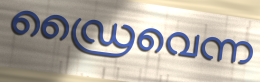
ഡ്രൈവെന്ന